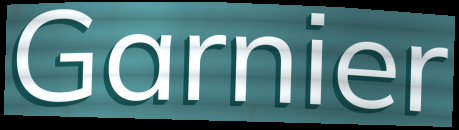
Garnier